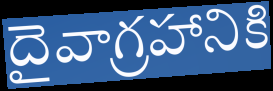
దైవాగ్రహానికి